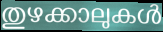
തുഴക്കാലുകൾ